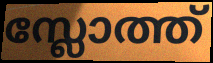
സ്ലോത്ത്